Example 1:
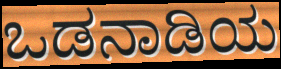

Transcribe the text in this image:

ಒಡನಾಡಿಯ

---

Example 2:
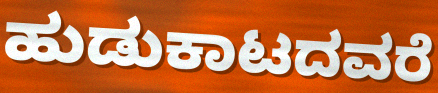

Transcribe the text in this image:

ಹುಡುಕಾಟದವರೆ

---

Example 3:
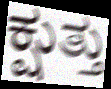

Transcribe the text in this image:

ಕ್ಷುತ್ತು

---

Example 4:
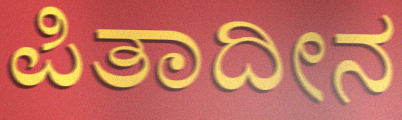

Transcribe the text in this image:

ಪಿತಾದೀನ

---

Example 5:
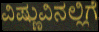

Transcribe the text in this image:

ವಿಷ್ಣುವಿನಲ್ಲಿಗೆ